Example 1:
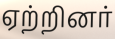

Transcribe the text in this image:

ஏற்றினர்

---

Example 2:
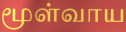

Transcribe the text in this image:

மூள்வாய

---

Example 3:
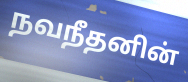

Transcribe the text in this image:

நவநீதனின்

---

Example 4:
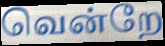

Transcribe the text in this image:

வென்றே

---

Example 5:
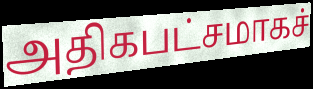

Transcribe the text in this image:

அதிகபட்சமாகச்